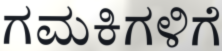
ಗಮಕಿಗಳಿಗೆ